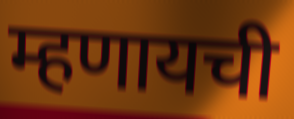
म्हणायची